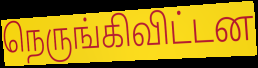
நெருங்கிவிட்டன